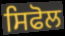
ਸਿਫੋਲ